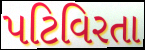
પટિવિરતા